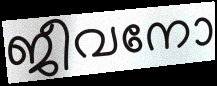
ജീവനോ